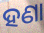
ହଣା